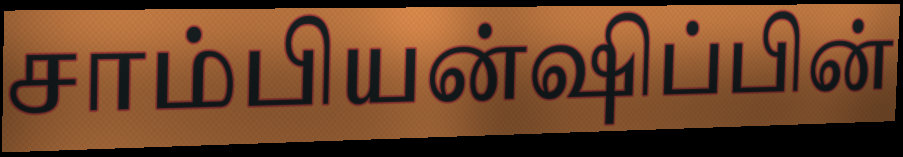
சாம்பியன்ஷிப்பின்